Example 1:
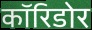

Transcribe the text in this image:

कॉरिडोर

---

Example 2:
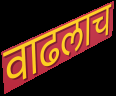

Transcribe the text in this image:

वाढलाच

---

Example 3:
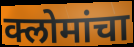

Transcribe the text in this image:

क्लोमांचा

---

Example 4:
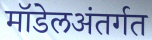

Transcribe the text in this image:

मॉडेलअंतर्गत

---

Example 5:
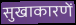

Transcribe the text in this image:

सुखाकारणें